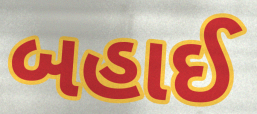
બહાઈ